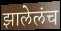
झालेलंच